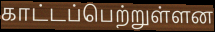
காட்டப்பெற்றுள்ளன